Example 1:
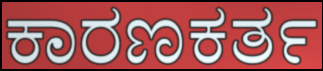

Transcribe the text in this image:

ಕಾರಣಕರ್ತ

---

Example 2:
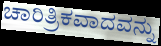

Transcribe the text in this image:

ಚಾರಿತ್ರಿಕವಾದವನ್ನು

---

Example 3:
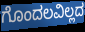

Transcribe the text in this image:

ಗೊಂದಲವಿಲ್ಲದ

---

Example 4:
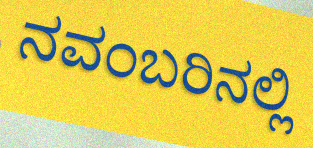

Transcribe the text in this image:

ನವಂಬರಿನಲ್ಲಿ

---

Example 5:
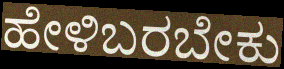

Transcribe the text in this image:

ಹೇಳಿಬರಬೇಕು